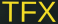
TFX